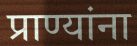
प्राण्यांना